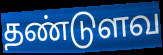
தண்டுளவ